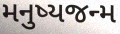
મનુષ્યજન્મ